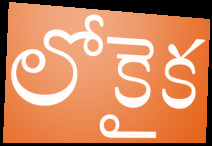
లోకైక